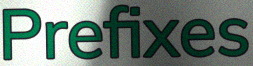
Prefixes